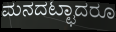
ಮನದಟ್ಟಾದರೂ